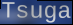
Tsuga